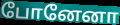
போனேனா